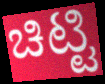
ಚಿಟ್ಟಿ